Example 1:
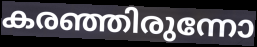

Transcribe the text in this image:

കരഞ്ഞിരുന്നോ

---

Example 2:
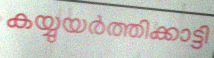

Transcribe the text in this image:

കയ്യുയർത്തിക്കാട്ടി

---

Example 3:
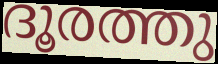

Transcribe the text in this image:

ദൂരത്തു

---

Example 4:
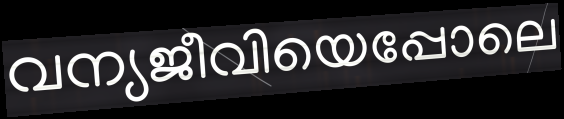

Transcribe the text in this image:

വന്യജീവിയെപ്പോലെ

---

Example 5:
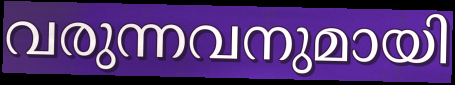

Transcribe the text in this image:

വരുന്നവനുമായി